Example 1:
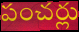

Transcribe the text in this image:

పంచర్లు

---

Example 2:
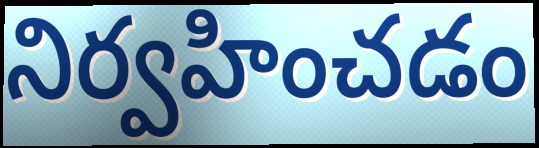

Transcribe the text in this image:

నిర్వహించడం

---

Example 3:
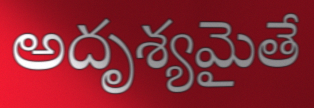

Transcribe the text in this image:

అదృశ్యమైతే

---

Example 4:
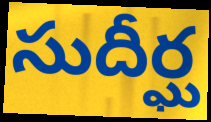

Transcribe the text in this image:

సుదీర్ఘ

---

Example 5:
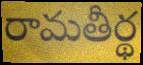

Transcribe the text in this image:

రామతీర్థ